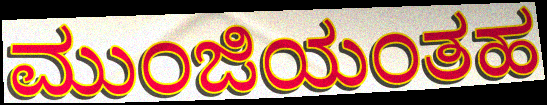
ಮುಂಜಿಯಂತಹ